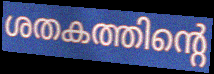
ശതകത്തിന്റെ